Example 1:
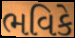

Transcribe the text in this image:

ભવિકે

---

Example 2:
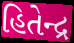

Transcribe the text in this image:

હિતેન્દ્ર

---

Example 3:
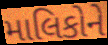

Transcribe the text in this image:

માલિકોને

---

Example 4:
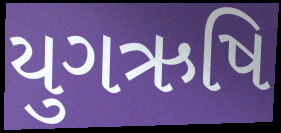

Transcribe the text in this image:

યુગઋષિ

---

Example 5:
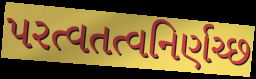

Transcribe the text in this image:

પરત્વતત્વનિર્ણચ્છ